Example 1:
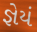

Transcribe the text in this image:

જ્ઞેયં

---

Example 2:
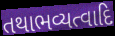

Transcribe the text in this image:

તથાભવ્યત્વાદિ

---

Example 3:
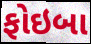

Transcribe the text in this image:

ફોઇબા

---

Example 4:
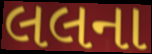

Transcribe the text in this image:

લલના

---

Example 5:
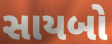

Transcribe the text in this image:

સાયબો